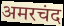
अमरचंद